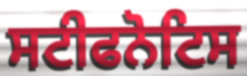
ਸਟੀਫਨੋਟਿਸ